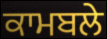
ਕਾਮਬਲੇ